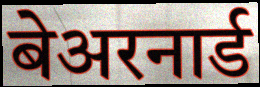
बेअरनार्ड